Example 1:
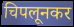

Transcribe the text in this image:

चिपलूनकर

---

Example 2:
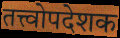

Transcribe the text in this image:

तत्त्वोपदेशक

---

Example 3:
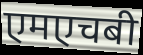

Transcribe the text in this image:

एमएचबी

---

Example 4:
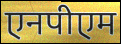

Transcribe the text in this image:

एनपीएम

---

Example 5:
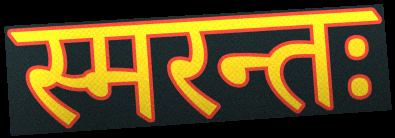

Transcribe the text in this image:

स्मरन्तः